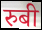
रुबी